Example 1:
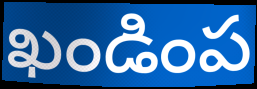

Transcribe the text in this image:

ఖండింప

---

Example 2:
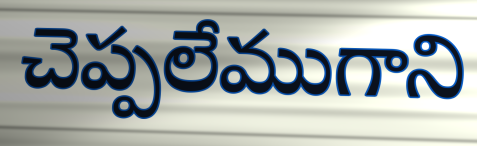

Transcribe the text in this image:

చెప్పలేముగాని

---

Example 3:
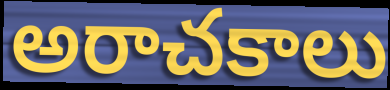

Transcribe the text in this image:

అరాచకాలు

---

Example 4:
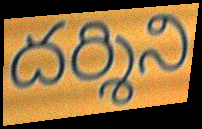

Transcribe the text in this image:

దర్శిని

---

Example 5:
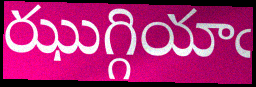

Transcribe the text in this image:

ఝుగ్గియాఁ